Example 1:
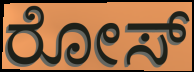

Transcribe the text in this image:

ರೋಸ್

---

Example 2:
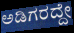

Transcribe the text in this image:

ಅಡಿಗರದ್ದೇ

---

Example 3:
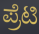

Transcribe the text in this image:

ಪ್ರೆಟಿ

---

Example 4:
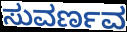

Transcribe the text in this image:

ಸುವರ್ಣವ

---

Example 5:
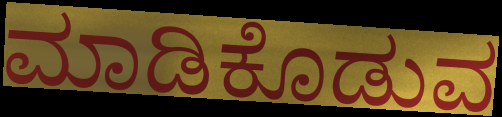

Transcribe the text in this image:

ಮಾಡಿಕೊಡುವ